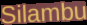
Silambu